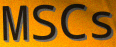
MSCs